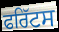
ਫਰਿੱਟਸ